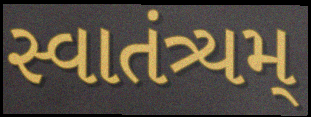
સ્વાતંત્ર્યમ્